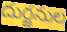
దుర్జనుల